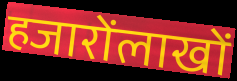
हजारोंलाखों